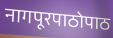
नागपूरपाठोपाठ